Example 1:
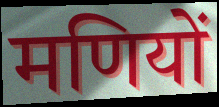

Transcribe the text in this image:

मणियों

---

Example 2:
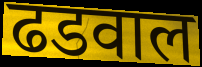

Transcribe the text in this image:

ढडवाल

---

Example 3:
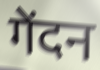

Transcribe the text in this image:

गेंदन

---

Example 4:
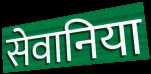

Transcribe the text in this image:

सेवानिया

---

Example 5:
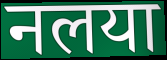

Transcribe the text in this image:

नलया